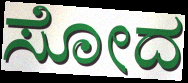
ಸೋದ